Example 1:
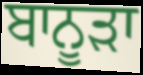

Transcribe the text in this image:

ਬਾਨੂੜਾ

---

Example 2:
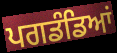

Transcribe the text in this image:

ਪਗਡੰਡਿਆਂ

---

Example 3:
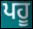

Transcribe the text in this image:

ਪਹੂ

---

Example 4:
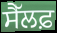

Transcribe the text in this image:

ਸੈੱਲਫ਼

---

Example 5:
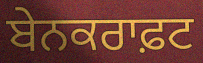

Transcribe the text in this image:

ਬੇਨਕਰਾਫ਼ਟ